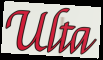
Ulta